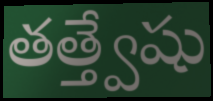
తత్త్వేషు